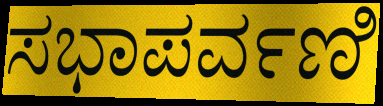
ಸಭಾಪರ್ವಣಿ